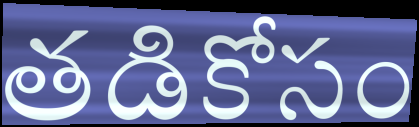
తడికోసం